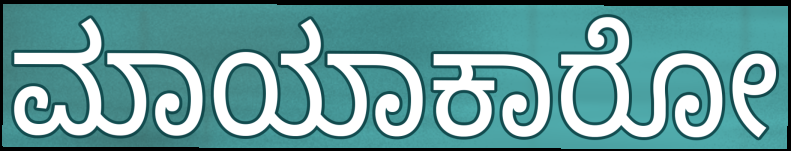
ಮಾಯಾಕಾರೋ